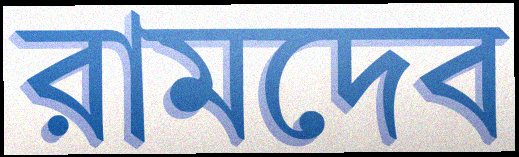
রামদেব